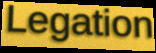
Legation